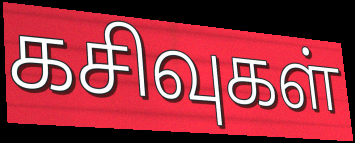
கசிவுகள்